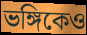
ভঙ্গিকেও